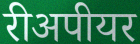
रीअपीयर